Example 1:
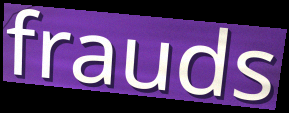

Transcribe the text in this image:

frauds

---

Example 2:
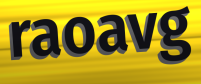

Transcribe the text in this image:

raoavg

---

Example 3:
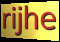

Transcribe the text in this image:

rijhe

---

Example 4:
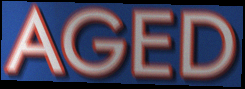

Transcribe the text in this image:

AGED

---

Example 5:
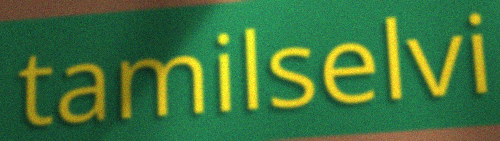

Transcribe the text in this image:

tamilselvi